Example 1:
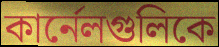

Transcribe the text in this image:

কার্নেলগুলিকে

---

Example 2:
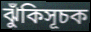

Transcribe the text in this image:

ঝুঁকিসূচক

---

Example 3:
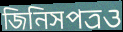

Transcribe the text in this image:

জিনিসপত্রও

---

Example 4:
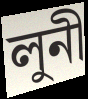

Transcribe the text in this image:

লুনী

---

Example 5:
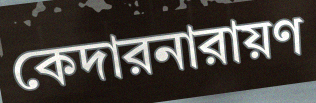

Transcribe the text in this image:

কেদারনারায়ণ